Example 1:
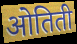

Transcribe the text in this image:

ओतिती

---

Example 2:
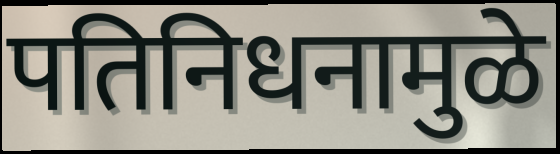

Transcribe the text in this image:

पतिनिधनामुळे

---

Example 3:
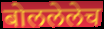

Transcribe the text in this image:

बोललेलेच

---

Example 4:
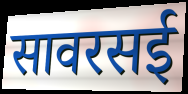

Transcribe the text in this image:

सावरसई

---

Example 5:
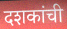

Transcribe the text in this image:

दशकांची